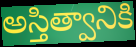
అస్తిత్వానికి